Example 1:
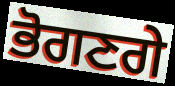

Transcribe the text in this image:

ਭੋਗਣਗੇ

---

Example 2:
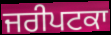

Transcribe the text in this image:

ਜਰੀਪਟਕਾ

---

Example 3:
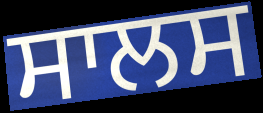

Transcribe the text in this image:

ਸਾਲਸ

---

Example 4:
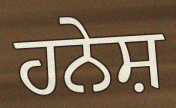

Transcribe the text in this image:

ਹਨੇਸ਼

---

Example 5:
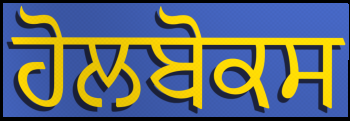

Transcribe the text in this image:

ਹੋਲਬੋਕਸ